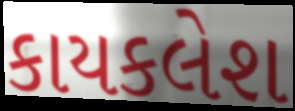
કાયકલેશ